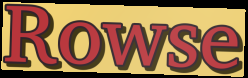
Rowse